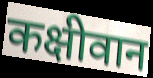
कक्षीवान